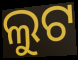
ଲୁଟ